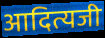
आदित्यजी